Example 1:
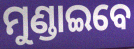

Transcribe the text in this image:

ମୁଣ୍ଡାଇବେ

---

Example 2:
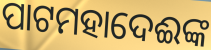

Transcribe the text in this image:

ପାଟମହାଦେଈଙ୍କ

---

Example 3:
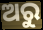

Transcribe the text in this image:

ଅରୁ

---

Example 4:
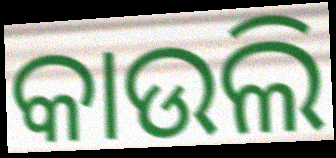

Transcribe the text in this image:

କାଉଲି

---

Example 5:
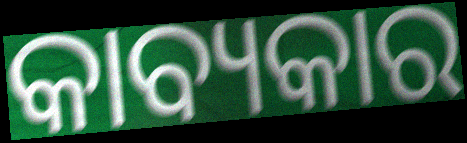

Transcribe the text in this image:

କାବ୍ୟକାର